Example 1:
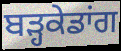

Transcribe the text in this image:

ਬੜ੍ਹਕੇਡਾਂਗ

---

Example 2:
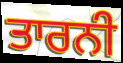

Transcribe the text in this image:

ਤਾਰਨੀ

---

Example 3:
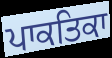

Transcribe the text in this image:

ਪਾਕਤਿਕਾ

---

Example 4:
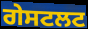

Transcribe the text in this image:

ਗੇਸਟਲਟ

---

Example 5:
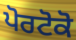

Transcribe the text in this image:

ਪੋਰਟੋਕੋ